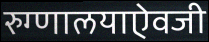
रुग्णालयाऐवजी